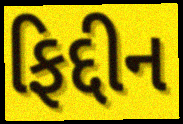
ફિદ્દીન